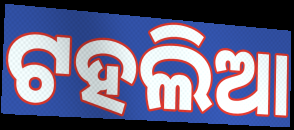
ଟହଲିଆ